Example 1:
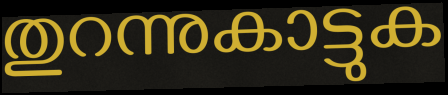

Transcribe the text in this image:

തുറന്നുകാട്ടുക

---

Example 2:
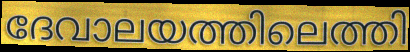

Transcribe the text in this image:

ദേവാലയത്തിലെത്തി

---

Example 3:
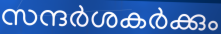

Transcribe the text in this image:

സന്ദർശകർക്കും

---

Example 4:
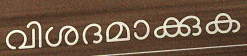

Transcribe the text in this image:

വിശദമാക്കുക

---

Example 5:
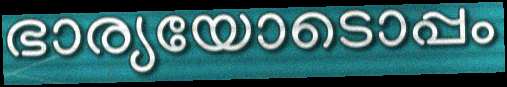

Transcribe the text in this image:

ഭാര്യയോടൊപ്പം